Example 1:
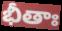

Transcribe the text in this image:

భీతాః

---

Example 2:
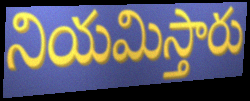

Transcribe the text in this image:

నియమిస్తారు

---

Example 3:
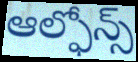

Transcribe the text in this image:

ఆల్ఫోన్స్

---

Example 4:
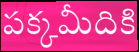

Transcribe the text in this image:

పక్కమీదికి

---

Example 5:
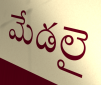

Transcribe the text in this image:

మేడలై